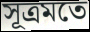
সূত্রমতে